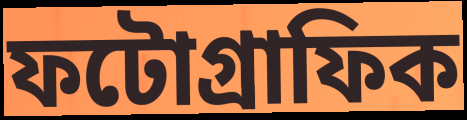
ফটোগ্রাফিক